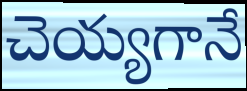
చెయ్యగానే